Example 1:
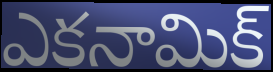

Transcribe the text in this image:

ఎకనామిక్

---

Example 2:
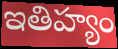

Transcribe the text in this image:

ఇతిహ్యం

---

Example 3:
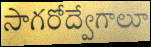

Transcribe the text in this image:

సాగరోద్వేగాలూ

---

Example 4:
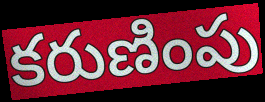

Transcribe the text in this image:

కరుణింపు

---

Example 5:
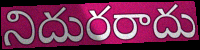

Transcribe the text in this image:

నిదురరాదు